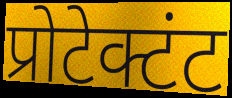
प्रोटेक्टंट